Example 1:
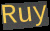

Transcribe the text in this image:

Ruy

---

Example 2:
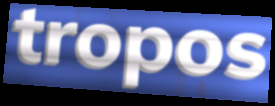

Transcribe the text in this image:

tropos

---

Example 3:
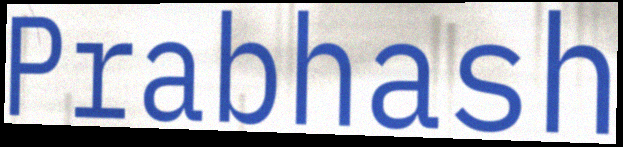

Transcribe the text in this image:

Prabhash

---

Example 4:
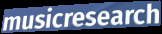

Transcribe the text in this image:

musicresearch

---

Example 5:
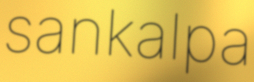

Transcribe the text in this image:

sankalpa